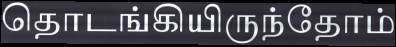
தொடங்கியிருந்தோம்